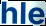
hle